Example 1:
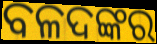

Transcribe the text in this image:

ବଳଦଙ୍କର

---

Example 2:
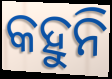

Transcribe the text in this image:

କହୁନି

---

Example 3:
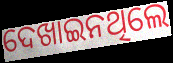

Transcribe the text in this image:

ଦେଖାଇନଥିଲେ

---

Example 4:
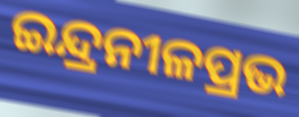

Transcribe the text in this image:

ଇନ୍ଦ୍ରନୀଳପ୍ରଭ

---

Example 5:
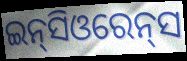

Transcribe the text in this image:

ଇନ୍‌ସିଓରେନ୍‌ସ